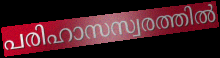
പരിഹാസസ്വരത്തിൽ